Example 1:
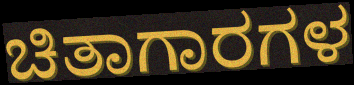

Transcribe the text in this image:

ಚಿತಾಗಾರಗಳ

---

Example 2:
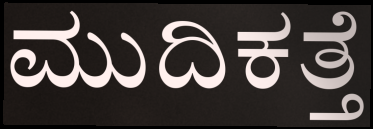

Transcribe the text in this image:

ಮುದಿಕತ್ತೆ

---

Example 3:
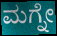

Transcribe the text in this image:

ಮಗ್ನೇ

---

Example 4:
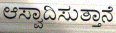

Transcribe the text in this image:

ಆಸ್ವಾದಿಸುತ್ತಾನೆ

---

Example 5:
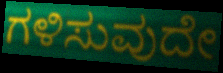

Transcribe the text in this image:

ಗಳಿಸುವುದೇ